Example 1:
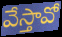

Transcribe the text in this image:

వేస్తావో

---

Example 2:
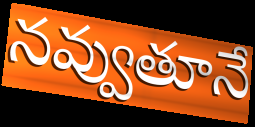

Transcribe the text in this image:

నవ్వుతూనే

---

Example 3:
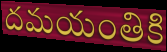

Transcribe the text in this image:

దమయంతికి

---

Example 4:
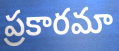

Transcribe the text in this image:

ప్రకారమా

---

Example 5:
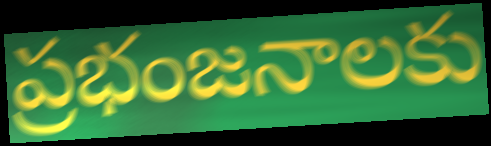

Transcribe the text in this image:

ప్రభంజనాలకు